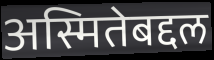
अस्मितेबद्दल